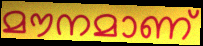
മൗനമാണ്